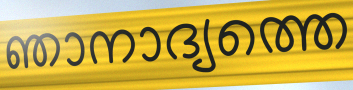
ഞാനാദ്യത്തെ